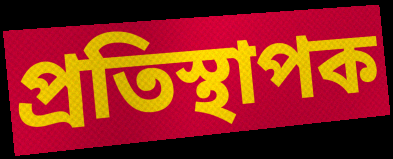
প্ৰতিস্থাপক